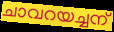
ചാവറയച്ചന്